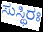
ಸುಸ್ಥಿರಃ